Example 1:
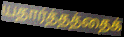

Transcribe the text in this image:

யதார்த்தத்தைக்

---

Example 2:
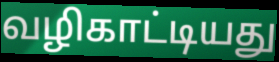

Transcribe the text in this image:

வழிகாட்டியது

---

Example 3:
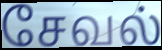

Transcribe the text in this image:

சேவல்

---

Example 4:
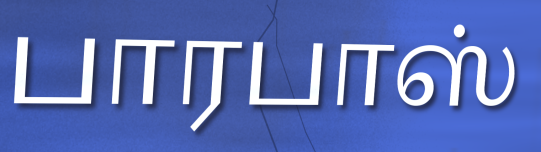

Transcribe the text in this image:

பாரபாஸ்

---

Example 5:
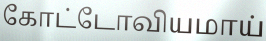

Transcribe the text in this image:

கோட்டோவியமாய்